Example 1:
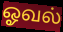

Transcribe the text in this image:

ஓவல்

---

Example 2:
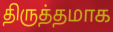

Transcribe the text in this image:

திருத்தமாக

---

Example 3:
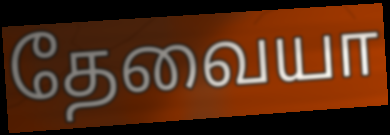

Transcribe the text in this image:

தேவையா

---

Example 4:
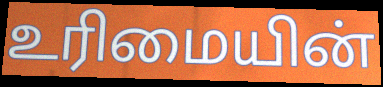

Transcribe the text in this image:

உரிமையின்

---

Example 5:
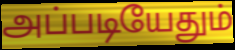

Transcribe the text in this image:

அப்படியேதும்